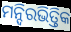
ମନ୍ଦିରଭିତ୍ତିକ